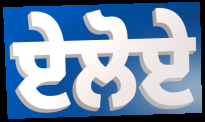
ਏਲੋਏ